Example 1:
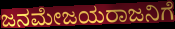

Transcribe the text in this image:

ಜನಮೇಜಯರಾಜನಿಗೆ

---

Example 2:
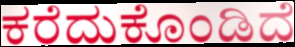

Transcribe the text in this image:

ಕರೆದುಕೊಂಡಿದೆ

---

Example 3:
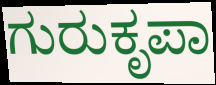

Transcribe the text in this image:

ಗುರುಕೃಪಾ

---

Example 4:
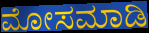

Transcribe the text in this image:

ಮೋಸಮಾಡಿ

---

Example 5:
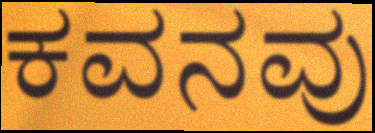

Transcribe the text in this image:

ಕವನವು